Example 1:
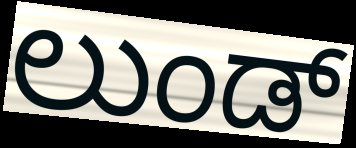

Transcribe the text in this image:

ಲುಂಡ್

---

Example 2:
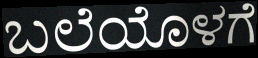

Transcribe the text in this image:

ಬಲೆಯೊಳಗೆ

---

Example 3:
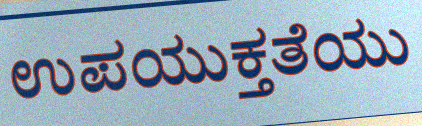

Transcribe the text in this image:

ಉಪಯುಕ್ತತೆಯು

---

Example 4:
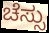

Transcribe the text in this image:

ಚೆಸ್ಸು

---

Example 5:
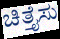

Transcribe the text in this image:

ಚಿತ್ತೈಸು